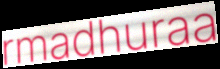
rmadhuraa